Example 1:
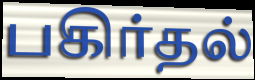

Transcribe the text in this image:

பகிர்தல்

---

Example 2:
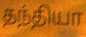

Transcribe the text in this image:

தந்தியா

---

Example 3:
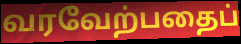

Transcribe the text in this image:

வரவேற்பதைப்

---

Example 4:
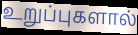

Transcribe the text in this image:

உறுப்புகளால்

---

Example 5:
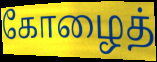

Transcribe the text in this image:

கோழைத்